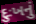
દુઃખનું